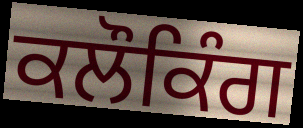
ਕਲੌਕਿੰਗ